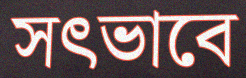
সৎভাবে